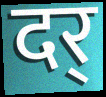
दर्